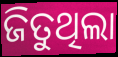
ଜିତୁଥିଲା